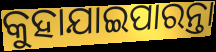
କୁହାଯାଇପାରନ୍ତା